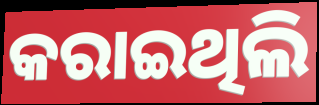
କରାଇଥିଲି